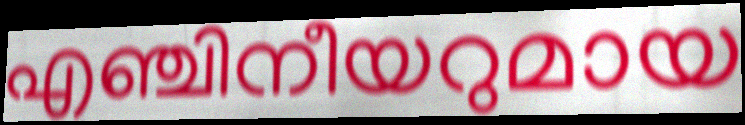
എഞ്ചിനീയറുമായ